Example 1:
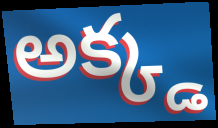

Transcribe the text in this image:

అక్క్డ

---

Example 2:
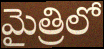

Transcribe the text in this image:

మైత్రిలో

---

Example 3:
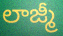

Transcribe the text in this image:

లాజ్మీ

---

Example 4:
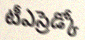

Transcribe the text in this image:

టీఎస్రెడ్కో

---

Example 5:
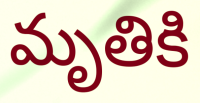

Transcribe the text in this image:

మృతికి